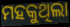
ମହକୁଥିଲା